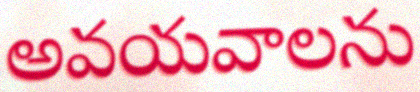
అవయవాలను